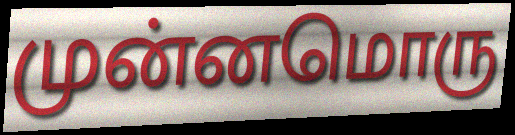
முன்னமொரு